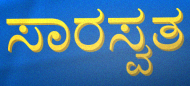
ಸಾರಸ್ವತ